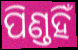
ପିଣ୍ଡହିଁ